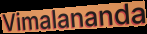
Vimalananda